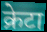
क्रेटा